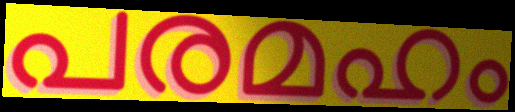
പരമഹം